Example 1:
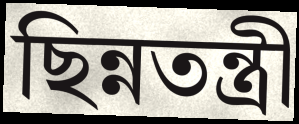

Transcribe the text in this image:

ছিন্নতন্ত্রী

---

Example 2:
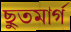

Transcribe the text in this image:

ছুতমার্গ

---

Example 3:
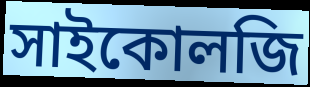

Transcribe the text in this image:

সাইকোলজি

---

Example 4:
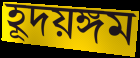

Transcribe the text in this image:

হূদয়ঙ্গম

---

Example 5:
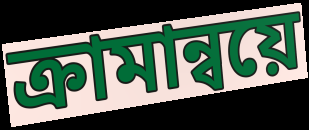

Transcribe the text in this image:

ক্রামান্বয়ে